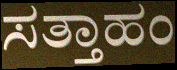
ಸತ್ತಾಹಂ